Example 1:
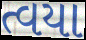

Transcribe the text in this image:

ત્વયા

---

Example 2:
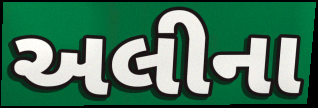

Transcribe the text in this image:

અલીના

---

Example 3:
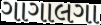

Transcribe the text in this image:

ગાગાલગા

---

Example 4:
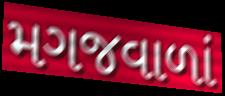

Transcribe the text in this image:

મગજવાળાં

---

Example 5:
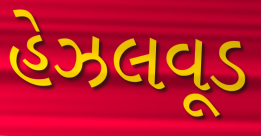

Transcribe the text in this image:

હેઝલવૂડ